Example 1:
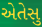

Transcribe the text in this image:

એતેસુ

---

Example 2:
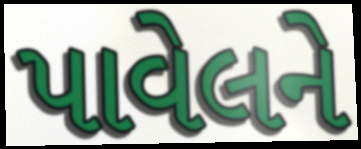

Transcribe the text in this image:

પાવેલને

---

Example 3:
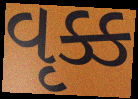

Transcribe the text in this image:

વૃક્ક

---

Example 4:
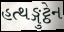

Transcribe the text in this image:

હત્થઙ્ગુટ્ઠેન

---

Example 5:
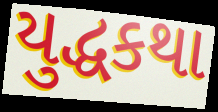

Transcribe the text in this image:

યુદ્ધકથા